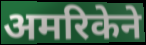
अमरिकेने